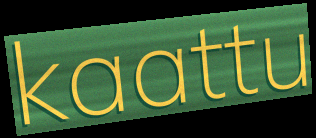
kaattu